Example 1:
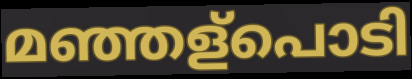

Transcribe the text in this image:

മഞ്ഞള്പൊടി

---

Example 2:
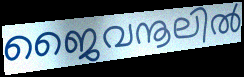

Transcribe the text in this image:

ജൈവനൂലിൽ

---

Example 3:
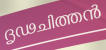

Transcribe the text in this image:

ദൃഢചിത്തൻ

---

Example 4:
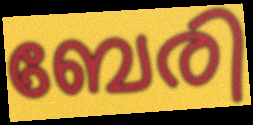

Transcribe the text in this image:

ബേരി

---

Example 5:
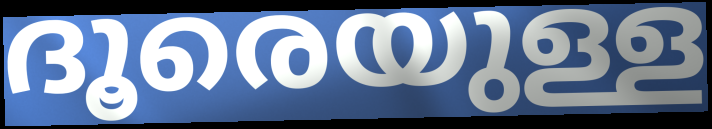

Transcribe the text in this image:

ദൂരെയുള്ള